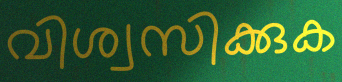
വിശ്വസിക്കുക